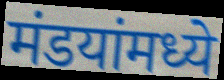
मंडयांमध्ये